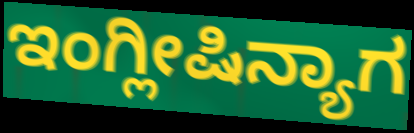
ಇಂಗ್ಲೀಷಿನ್ಯಾಗ